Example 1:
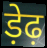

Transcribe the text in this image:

ड़ेढ़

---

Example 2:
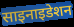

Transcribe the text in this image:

साइनाइडेशन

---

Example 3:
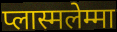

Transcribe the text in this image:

प्लास्मलेम्मा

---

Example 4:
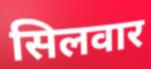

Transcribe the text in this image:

सिलवार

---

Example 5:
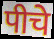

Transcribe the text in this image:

पीचे